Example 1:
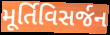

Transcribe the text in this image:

મૂર્તિવિસર્જન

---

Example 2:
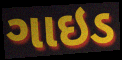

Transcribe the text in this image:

ગાઇડ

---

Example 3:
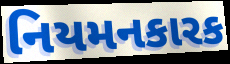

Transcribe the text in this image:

નિયમનકારક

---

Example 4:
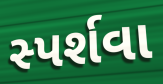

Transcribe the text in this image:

સ્પર્શવા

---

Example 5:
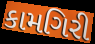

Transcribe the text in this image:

કામગિરી